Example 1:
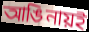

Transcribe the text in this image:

আঙিনায়ই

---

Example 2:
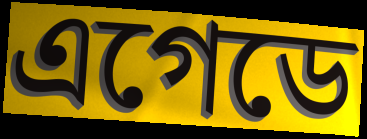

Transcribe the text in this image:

এগেডে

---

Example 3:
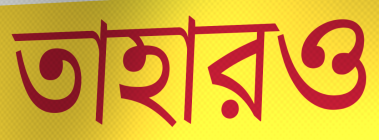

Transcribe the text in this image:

তাহারও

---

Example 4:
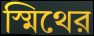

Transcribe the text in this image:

স্মিথের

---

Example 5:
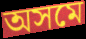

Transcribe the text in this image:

অসমে